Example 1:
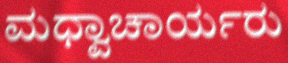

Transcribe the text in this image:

ಮಧ್ವಾಚಾರ್ಯರು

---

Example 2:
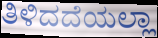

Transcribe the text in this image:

ತಿಳಿದದೆಯಲ್ಲಾ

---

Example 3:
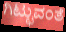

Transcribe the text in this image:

ಗಿಟ್ಟುವಂತೆ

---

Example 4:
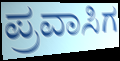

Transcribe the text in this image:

ಪ್ರವಾಸಿಗ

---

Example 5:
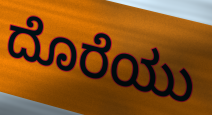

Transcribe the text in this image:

ದೊರೆಯು